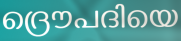
ദ്രൌപദിയെ